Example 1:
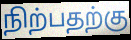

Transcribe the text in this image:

நிற்பதற்கு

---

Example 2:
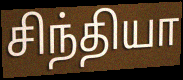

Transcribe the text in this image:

சிந்தியா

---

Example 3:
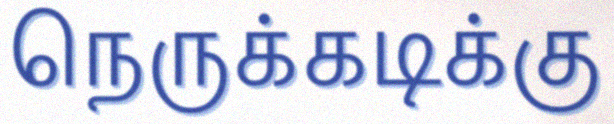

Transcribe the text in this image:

நெருக்கடிக்கு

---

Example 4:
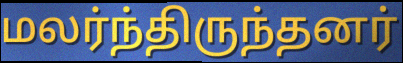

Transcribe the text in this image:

மலர்ந்திருந்தனர்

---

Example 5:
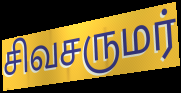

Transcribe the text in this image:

சிவசருமர்